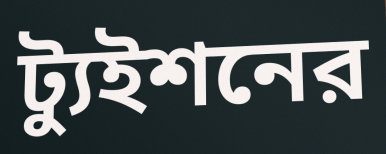
ট্যুইশনের